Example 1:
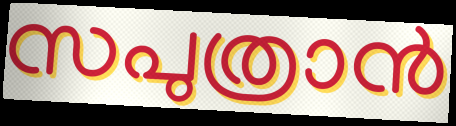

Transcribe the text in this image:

സപുത്രാൻ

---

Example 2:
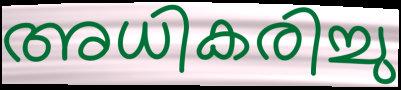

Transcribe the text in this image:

അധികരിച്ചു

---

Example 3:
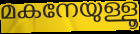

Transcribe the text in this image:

മകനേയുള്ളൂ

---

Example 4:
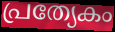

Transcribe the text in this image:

പ്രത്യേകം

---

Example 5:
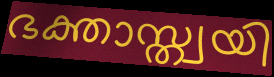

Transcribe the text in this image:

ഭക്താസ്ത്വയി